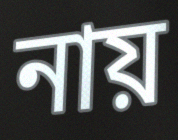
নায়